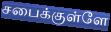
சபைக்குள்ளே